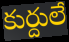
కుర్దులే